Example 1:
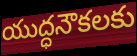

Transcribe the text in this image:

యుద్ధనౌకలకు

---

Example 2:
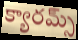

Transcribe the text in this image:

క్యారమ్స్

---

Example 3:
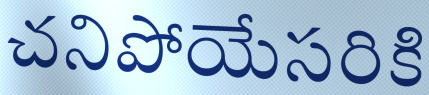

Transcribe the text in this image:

చనిపోయేసరికి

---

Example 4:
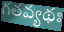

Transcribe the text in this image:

గతవ్యథః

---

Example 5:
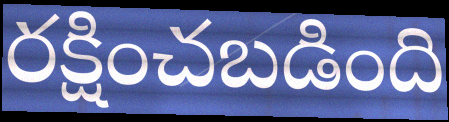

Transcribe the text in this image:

రక్షించబడింది